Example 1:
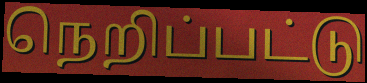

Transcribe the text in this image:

நெறிப்பட்டு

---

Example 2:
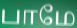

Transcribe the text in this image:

பாமே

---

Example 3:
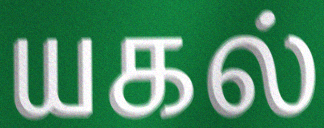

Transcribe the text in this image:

யகல்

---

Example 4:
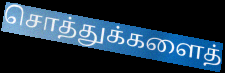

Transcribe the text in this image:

சொத்துக்களைத்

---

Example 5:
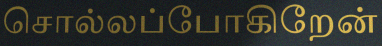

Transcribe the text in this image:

சொல்லப்போகிறேன்